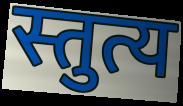
स्तुत्य